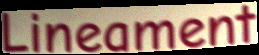
Lineament